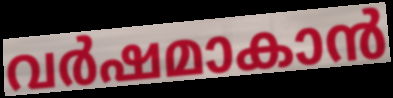
വർഷമാകാൻ